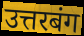
उत्तरबंग